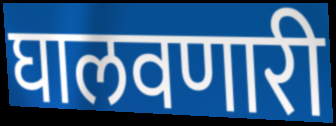
घालवणारी